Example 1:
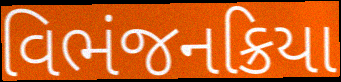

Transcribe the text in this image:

વિભંજનક્રિયા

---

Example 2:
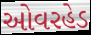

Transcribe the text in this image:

ઓવરહેડ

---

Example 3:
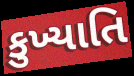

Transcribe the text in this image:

કુખ્યાતિ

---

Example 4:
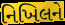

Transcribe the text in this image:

નિખિલને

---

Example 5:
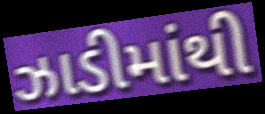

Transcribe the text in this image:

ઝાડીમાંથી